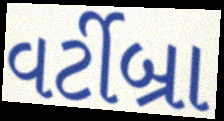
વર્ટીબ્રા